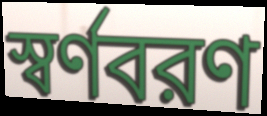
স্বর্ণবরণ